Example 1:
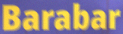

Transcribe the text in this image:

Barabar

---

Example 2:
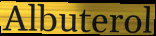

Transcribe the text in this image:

Albuterol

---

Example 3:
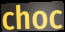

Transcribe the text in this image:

choc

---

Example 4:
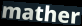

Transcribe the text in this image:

mather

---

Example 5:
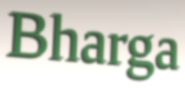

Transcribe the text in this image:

Bharga